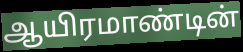
ஆயிரமாண்டின்